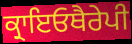
ਕ੍ਰਾਇਓਥੈਰੇਪੀ